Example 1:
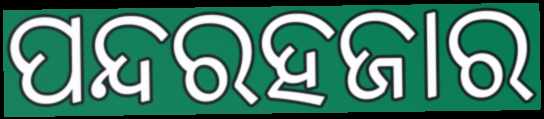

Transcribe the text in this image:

ପନ୍ଦରହଜାର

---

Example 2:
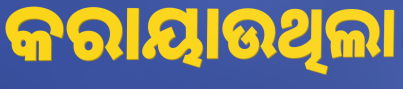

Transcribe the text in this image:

କରାୟାଉଥିଲା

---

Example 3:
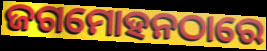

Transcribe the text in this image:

ଜଗମୋହନଠାରେ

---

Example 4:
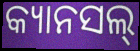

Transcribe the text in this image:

କ୍ୟାନସଲ୍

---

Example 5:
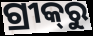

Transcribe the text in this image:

ଗ୍ରୀକ୍‌ରୁ